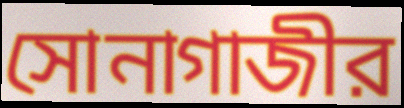
সোনাগাজীর